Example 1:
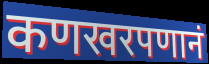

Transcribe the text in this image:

कणखरपणानं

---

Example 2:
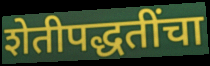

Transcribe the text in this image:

शेतीपद्धतींचा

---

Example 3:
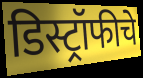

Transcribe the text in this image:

डिस्ट्रॉफीचे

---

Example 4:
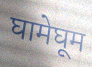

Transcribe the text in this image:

घामेघूम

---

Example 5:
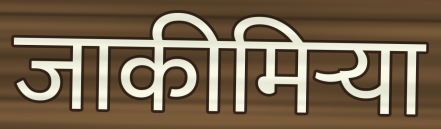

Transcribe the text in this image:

जाकीमिऱ्या